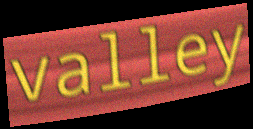
valley